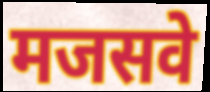
मजसवे